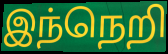
இந்நெறி